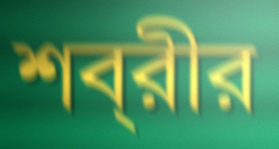
শব্‌রীর